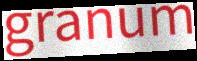
granum